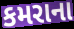
કમરાના